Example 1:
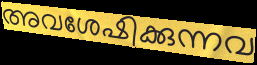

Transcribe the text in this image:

അവശേഷിക്കുന്നവ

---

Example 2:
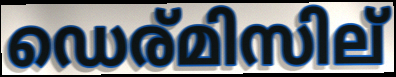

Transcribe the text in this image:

ഡെര്മിസില്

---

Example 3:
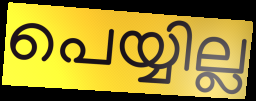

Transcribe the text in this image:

പെയ്യില്ല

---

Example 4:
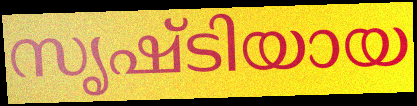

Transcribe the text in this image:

സൃഷ്ടിയായ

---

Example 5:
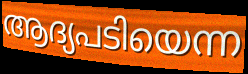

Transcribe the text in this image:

ആദ്യപടിയെന്ന